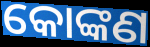
କୋଙ୍କଣ